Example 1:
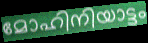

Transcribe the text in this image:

മോഹിനിയാട്ടം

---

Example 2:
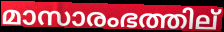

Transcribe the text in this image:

മാസാരംഭത്തില്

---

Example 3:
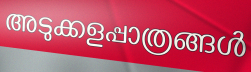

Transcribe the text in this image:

അടുക്കളപ്പാത്രങ്ങൾ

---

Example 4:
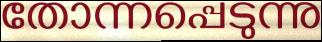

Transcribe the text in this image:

തോന്നപ്പെടുന്നു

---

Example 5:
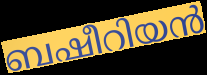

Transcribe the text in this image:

ബഷീറിയൻ